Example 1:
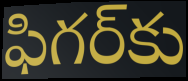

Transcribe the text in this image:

ఫిగర్‌కు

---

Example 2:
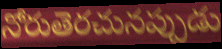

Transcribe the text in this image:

నోరుతెరచునప్పుడు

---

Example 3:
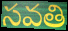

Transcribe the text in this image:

సవతి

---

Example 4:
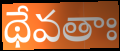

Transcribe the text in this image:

థేవతాః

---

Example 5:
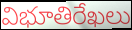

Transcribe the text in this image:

విభూతిరేఖలు